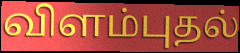
விளம்புதல்